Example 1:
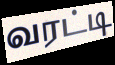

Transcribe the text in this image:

வரட்டி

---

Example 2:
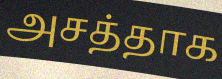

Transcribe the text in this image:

அசத்தாக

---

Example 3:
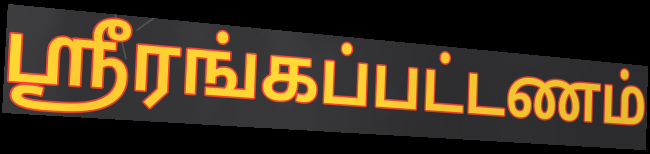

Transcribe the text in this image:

ஸ்ரீரங்கப்பட்டணம்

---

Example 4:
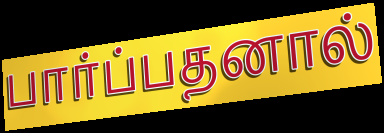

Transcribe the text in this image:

பார்ப்பதனால்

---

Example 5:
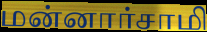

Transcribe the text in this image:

மன்னார்சாமி